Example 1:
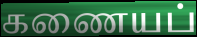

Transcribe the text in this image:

கணையப்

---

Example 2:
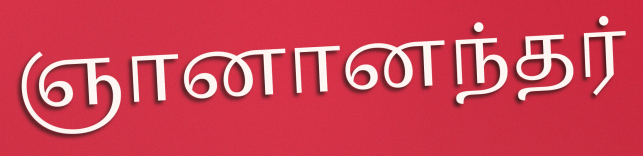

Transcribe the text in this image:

ஞானானந்தர்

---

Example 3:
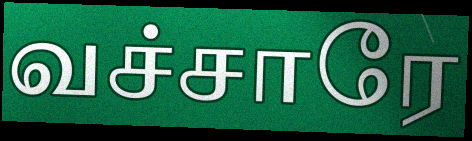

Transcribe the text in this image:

வச்சாரே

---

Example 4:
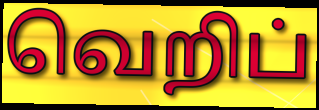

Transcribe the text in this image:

வெறிப்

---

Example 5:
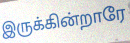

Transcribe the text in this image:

இருக்கின்றாரே